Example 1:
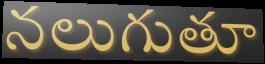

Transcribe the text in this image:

నలుగుతూ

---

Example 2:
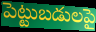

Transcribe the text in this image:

పెట్టుబడులపై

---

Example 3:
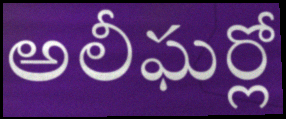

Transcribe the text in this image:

అలీఘర్లో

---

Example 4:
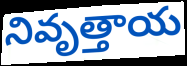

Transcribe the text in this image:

నివృత్తాయ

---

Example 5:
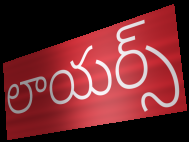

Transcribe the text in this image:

లాయర్స్